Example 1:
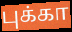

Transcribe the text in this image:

புக்கா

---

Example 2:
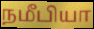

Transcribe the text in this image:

நமீபியா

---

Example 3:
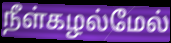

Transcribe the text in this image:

நீள்கழல்மேல்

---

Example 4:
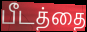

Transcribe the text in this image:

பீடத்தை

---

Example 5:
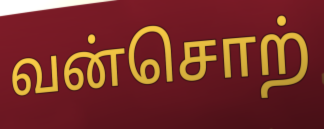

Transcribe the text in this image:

வன்சொற்